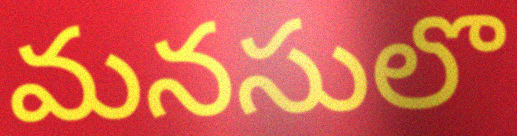
మనసులొ